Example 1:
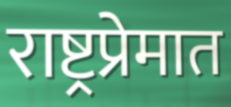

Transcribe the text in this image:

राष्ट्रप्रेमात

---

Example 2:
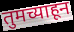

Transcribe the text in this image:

तुमच्याहून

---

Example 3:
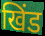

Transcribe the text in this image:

खिंड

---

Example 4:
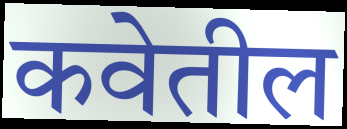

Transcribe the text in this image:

कवेतील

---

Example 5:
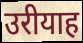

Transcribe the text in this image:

उरीयाह